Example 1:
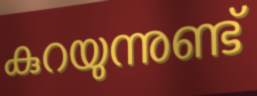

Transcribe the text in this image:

കുറയുന്നുണ്ട്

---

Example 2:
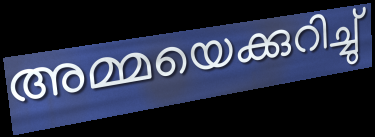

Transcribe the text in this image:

അമ്മയെക്കുറിച്ചു്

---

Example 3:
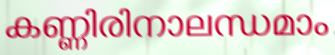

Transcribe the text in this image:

കണ്ണിരിനാലന്ധമാം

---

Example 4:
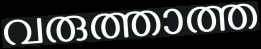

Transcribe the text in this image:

വരുത്താത്ത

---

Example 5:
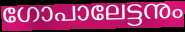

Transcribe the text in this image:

ഗോപാലേട്ടനും